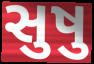
સુષુ